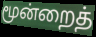
மூன்றைத்